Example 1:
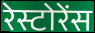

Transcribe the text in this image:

रेस्टोरेंस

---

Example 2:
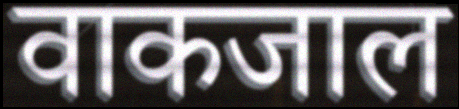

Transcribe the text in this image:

वाकजाल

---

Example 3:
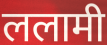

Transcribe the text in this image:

ललामी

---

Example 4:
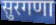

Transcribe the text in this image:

सुरगणा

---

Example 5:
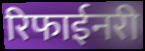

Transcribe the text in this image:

रिफाईनरी